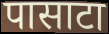
पासाटा